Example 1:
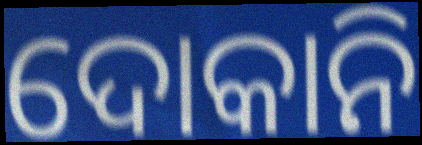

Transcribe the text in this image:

ଦୋକାନି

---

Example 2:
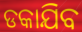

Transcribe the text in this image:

ଡକାଯିବ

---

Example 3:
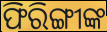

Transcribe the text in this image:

ଫିରିଙ୍ଗୀଙ୍କ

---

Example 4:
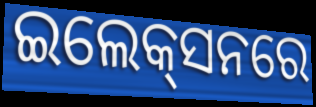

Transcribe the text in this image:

ଇଲେକ୍‍ସନରେ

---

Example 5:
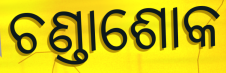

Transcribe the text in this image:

ଚଣ୍ଡାଶୋକ